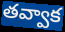
తవ్వాక